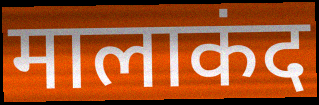
मालाकंद